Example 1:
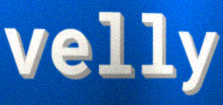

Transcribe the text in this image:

velly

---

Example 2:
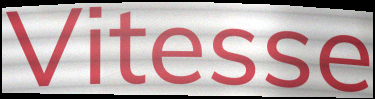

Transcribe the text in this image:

Vitesse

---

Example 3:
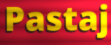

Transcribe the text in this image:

Pastaj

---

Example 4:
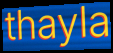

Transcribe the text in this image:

thayla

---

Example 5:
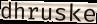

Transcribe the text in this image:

dhruske